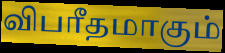
விபரீதமாகும்